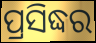
ପ୍ରସିଦ୍ଧର